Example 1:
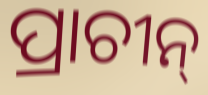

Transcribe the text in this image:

ପ୍ରାଚୀନ୍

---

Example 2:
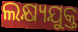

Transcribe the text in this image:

ଲକ୍ଷ୍ୟଯୁକ୍ତ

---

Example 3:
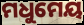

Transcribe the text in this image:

ମଧୁମେୟ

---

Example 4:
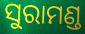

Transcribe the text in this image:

ସୁରାମଣ୍ଡ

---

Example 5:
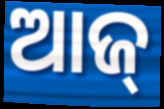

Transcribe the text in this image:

ଆଜ୍